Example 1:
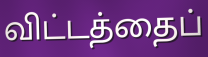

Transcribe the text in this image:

விட்டத்தைப்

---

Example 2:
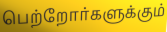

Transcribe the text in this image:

பெற்றோர்களுக்கும்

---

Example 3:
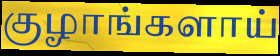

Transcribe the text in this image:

குழாங்களாய்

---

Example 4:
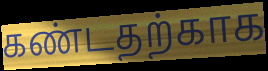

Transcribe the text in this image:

கண்டதற்காக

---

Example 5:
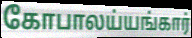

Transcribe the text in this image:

கோபாலய்யங்கார்